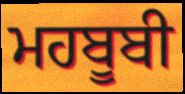
ਮਹਬੂਬੀ